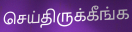
செய்திருக்கீங்க